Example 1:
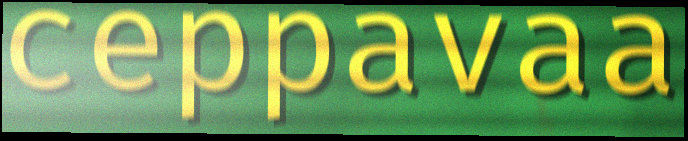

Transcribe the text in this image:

ceppavaa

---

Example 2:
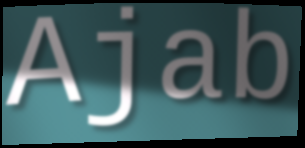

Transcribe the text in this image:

Ajab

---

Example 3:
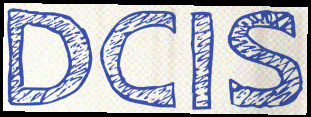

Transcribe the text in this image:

DCIS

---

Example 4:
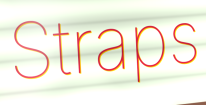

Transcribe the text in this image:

Straps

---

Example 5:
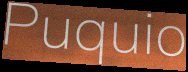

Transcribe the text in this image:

Puquio